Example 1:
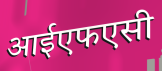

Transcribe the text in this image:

आईएफएसी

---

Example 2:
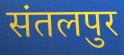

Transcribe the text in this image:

संतलपुर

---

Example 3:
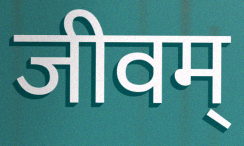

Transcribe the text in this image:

जीवम्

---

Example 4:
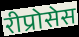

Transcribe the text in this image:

रीप्रोसेस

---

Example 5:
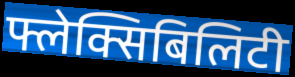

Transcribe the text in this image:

फ्लेक्सिबिलिटी